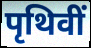
पृथिवीं